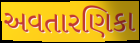
અવતારણિકા